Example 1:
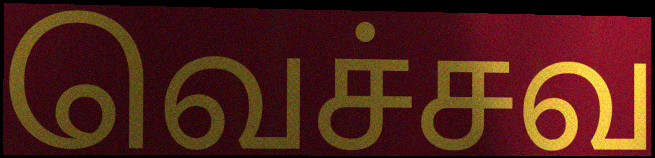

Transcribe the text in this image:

வெச்சவ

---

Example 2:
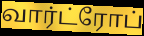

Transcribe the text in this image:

வார்ட்ரோப்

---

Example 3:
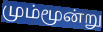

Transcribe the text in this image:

மும்மூன்று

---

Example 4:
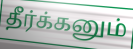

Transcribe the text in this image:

தீர்க்கனும்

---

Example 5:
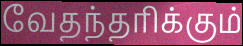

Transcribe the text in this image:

வேதந்தரிக்கும்